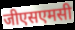
जीएसएमसी